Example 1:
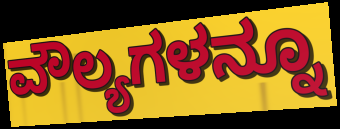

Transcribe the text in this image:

ವೌಲ್ಯಗಳನ್ನೂ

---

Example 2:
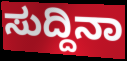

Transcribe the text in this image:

ಸುದ್ದಿನಾ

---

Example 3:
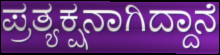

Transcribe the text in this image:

ಪ್ರತ್ಯಕ್ಷನಾಗಿದ್ದಾನೆ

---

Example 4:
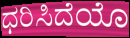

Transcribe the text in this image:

ಧರಿಸಿದೆಯೊ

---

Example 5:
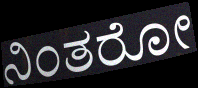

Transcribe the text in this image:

ನಿಂತರೋ